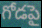
గోడపై